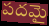
పదమై